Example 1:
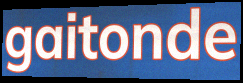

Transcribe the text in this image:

gaitonde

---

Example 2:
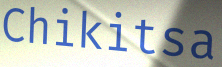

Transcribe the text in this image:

Chikitsa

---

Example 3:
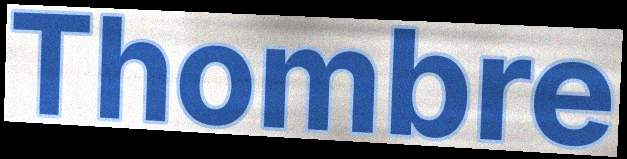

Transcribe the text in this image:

Thombre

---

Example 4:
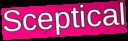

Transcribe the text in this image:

Sceptical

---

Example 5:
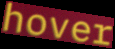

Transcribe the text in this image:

hover